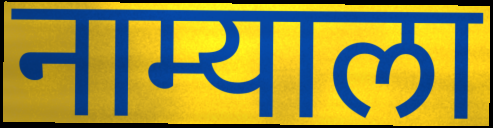
नाम्याला